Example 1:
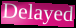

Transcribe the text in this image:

Delayed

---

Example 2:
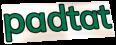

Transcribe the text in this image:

padtat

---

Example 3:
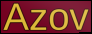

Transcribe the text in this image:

Azov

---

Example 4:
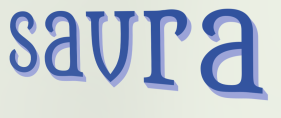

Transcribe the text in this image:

saura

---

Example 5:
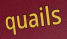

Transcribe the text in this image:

quails